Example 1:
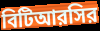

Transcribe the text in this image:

বিটিআরসির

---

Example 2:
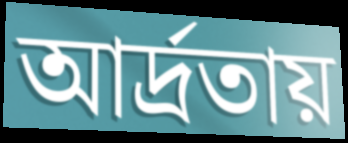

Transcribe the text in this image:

আর্দ্রতায়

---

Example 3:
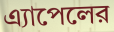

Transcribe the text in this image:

এ্যাপেলের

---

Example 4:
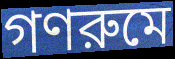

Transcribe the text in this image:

গণরুমে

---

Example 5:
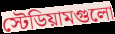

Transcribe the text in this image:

স্টেডিয়ামগুলো